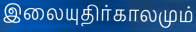
இலையுதிர்காலமும்